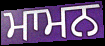
ਮਾਮਨ